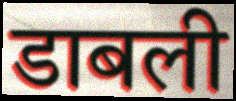
डाबली